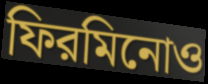
ফিরমিনোও